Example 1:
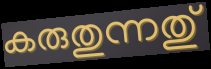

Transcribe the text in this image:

കരുതുന്നതു്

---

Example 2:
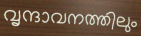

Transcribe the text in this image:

വൃന്ദാവനത്തിലും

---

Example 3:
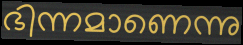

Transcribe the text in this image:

ഭിന്നമാണെന്നു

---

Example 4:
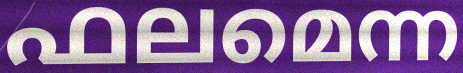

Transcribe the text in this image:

ഫലമെന്ന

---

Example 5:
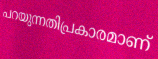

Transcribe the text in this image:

പറയുന്നതിപ്രകാരമാണ്